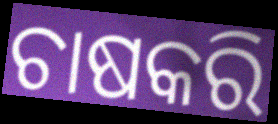
ଚାଷକରି